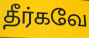
தீர்கவே